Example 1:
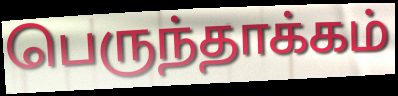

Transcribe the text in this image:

பெருந்தாக்கம்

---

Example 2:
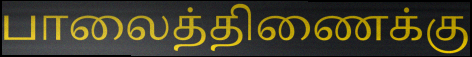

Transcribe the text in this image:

பாலைத்திணைக்கு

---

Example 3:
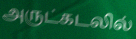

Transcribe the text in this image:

அருட்கடலில்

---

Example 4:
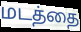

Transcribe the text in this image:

மடத்தை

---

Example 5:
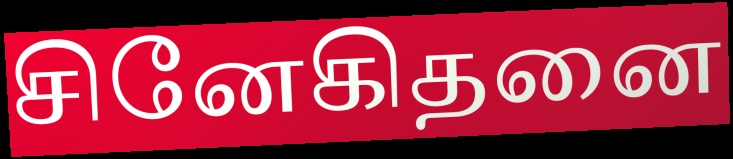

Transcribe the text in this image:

சினேகிதனை